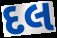
દલ